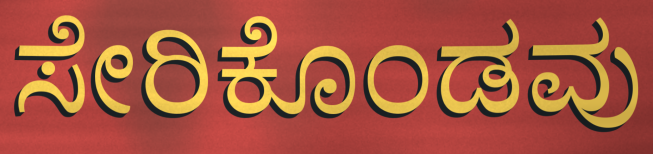
ಸೇರಿಕೊಂಡವು